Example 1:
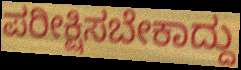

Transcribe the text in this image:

ಪರೀಕ್ಷಿಸಬೇಕಾದ್ದು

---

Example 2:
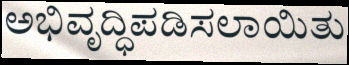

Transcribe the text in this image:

ಅಭಿವೃದ್ಧಿಪಡಿಸಲಾಯಿತು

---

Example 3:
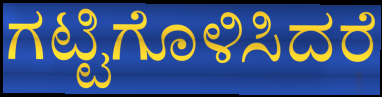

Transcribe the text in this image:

ಗಟ್ಟಿಗೊಳಿಸಿದರೆ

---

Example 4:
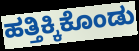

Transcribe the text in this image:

ಹತ್ತಿಕ್ಕಿಕೊಂಡು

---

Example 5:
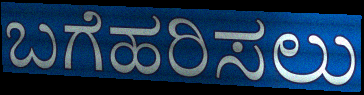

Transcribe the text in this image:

ಬಗೆಹರಿಸಲು